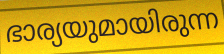
ഭാര്യയുമായിരുന്ന